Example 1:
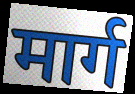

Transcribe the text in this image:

मार्ग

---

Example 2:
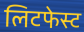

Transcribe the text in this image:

लिटफेस्ट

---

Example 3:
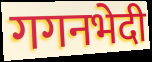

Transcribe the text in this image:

गगनभेदी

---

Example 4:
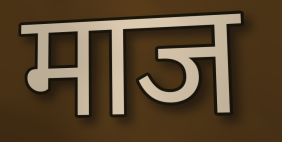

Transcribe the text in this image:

माज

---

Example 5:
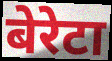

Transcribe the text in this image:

बेरेटा